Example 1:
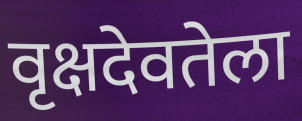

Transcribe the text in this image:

वृक्षदेवतेला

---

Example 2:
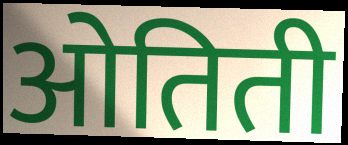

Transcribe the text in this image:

ओतिती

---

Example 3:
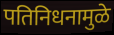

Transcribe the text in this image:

पतिनिधनामुळे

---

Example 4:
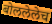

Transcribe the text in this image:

बोललेलेच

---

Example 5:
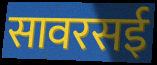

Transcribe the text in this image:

सावरसई